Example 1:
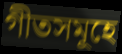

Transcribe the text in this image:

গীতসমূহে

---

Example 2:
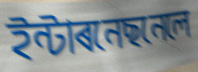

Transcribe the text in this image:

ইন্টাৰনেছনেলে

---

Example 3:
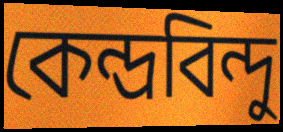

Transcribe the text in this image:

কেন্দ্ৰবিন্দু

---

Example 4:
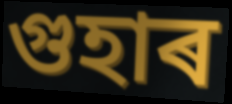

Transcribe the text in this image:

গুহাৰ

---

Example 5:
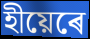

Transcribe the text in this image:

হীয়েৰে